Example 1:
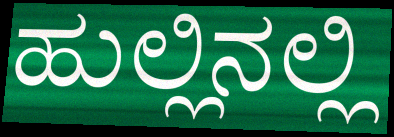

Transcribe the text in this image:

ಹುಲ್ಲಿನಲ್ಲಿ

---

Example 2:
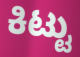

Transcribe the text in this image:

ಕಿಟ್ಟು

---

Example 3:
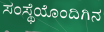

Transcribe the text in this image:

ಸಂಸ್ಥೆಯೊಂದಿಗಿನ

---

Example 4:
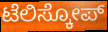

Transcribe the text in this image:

ಟೆಲಿಸ್ಕೋಪ್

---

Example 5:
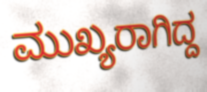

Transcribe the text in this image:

ಮುಖ್ಯರಾಗಿದ್ದ